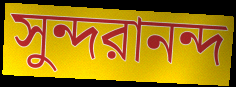
সুন্দরানন্দ